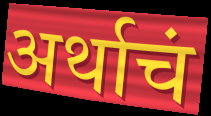
अर्थाचं